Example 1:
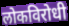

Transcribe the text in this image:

लोकविरोधी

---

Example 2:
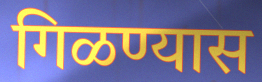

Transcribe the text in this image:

गिळण्यास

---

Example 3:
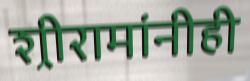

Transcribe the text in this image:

श्रीरामांनीही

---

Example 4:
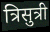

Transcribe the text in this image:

त्रिसुत्री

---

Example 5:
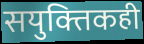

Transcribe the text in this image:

सयुक्तिकही